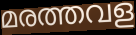
മരത്തവള